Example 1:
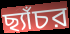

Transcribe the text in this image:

ছ্যাঁচর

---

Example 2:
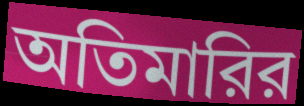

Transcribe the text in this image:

অতিমারির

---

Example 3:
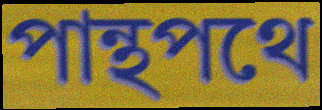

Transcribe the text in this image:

পান্থপথে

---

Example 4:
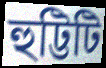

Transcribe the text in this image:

হুট্টিটি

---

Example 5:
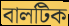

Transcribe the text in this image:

বালটিক